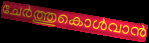
ചേർത്തുകൊൾവാൻ